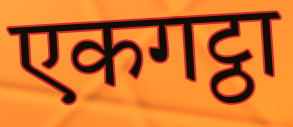
एकगट्ठा